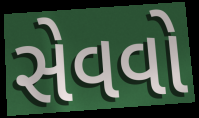
સેવવો